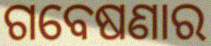
ଗବେଷଣାର